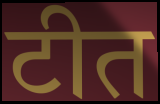
टीत